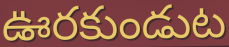
ఊరకుండుట